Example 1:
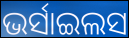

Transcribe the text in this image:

ଭର୍ସାଇଲସ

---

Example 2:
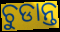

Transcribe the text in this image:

ଚୁଡାନ୍ତ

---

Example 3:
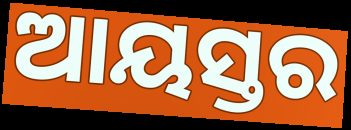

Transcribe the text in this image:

ଆୟସ୍ତର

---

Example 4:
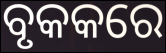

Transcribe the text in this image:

ବୃକକରେ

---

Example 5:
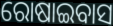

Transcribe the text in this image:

ରୋଷାଇବାସ